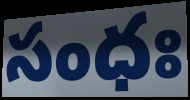
సంధః